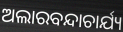
ଅଲାରବନ୍ଦାଚାର୍ଯ୍ୟ